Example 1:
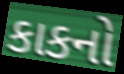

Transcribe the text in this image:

કાકનો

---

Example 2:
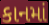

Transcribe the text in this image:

કાનમાં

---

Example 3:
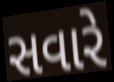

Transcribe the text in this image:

સવારે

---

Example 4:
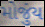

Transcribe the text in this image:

મોજુંય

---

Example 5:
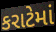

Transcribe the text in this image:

કરાટેમાં